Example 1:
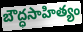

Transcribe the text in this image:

బౌద్ధసాహిత్యం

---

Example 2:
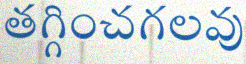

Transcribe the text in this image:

తగ్గించగలవు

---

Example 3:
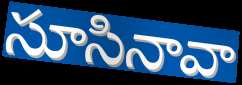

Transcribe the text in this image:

సూసినావా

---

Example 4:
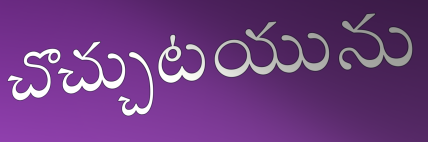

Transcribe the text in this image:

చొచ్చుటయును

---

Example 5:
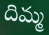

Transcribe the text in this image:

దిమ్మ